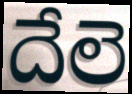
దేలె